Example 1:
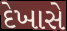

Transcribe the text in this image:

દેખાસે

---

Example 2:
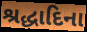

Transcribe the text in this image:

શ્રદ્ધાદિના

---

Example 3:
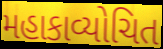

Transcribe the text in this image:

મહાકાવ્યોચિત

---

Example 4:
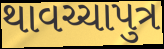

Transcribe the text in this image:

થાવચ્ચાપુત્ર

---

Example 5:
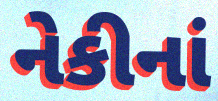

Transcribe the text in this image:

નેકીનાં